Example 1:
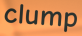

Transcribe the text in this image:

clump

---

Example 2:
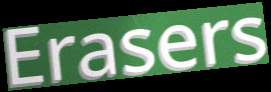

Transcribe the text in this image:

Erasers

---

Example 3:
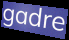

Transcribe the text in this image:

gadre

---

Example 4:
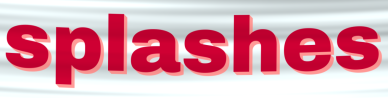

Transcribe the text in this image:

splashes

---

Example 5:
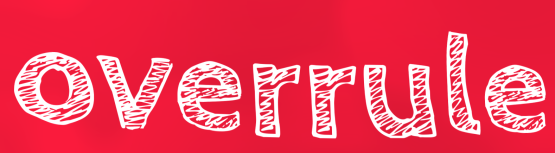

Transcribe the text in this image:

overrule